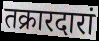
तक्रारदारां